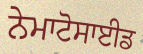
ਨੇਮਾਟੋਸਾਈਡ